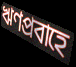
ঋণপ্রবাহে